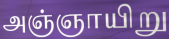
அஞ்ஞாயிறு